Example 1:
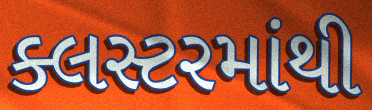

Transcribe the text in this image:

ક્લસ્ટરમાંથી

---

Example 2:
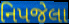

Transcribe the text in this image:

નિપજેલા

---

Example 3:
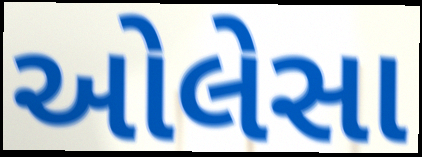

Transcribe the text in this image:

ઓલેસા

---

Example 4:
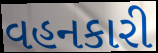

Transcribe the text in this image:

વહનકારી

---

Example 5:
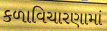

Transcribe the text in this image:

કળાવિચારણામાં